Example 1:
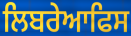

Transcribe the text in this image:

ਲਿਬਰੇਆਫਿਸ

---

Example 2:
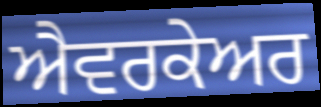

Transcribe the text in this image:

ਐਵਰਕੇਅਰ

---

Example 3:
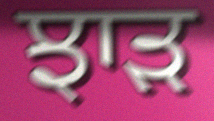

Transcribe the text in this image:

ਝਾੜ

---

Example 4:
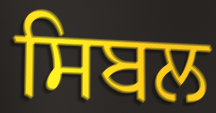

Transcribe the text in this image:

ਸਿਬਲ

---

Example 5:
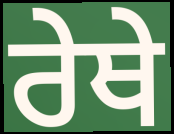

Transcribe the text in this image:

ਰੇਥੇ